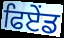
ਫਿਏਂਡ